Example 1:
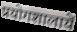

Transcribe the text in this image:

प्रयोगशालायें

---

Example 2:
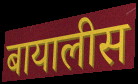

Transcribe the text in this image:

बायालीस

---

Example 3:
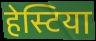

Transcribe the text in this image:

हेस्टिया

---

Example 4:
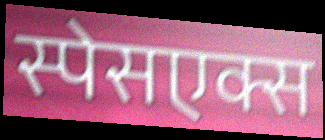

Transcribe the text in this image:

स्पेसएक्स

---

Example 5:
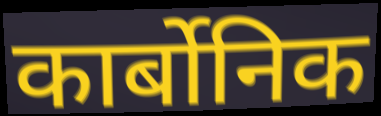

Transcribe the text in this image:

कार्बोनिक